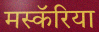
मस्कॅरिया